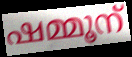
ഷമ്മൂന്